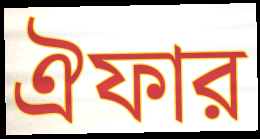
ঐফার